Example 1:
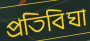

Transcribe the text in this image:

প্রতিবিঘা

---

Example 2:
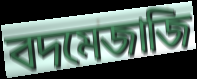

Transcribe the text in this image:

বদমেজাজি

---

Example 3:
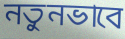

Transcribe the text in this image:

নতুনভাবে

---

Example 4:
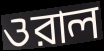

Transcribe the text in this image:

ওরাল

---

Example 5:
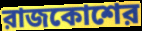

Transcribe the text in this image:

রাজকোশের